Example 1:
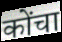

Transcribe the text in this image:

कोंचा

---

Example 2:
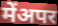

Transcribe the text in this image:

मेंअपर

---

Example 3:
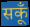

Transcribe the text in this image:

सकूँ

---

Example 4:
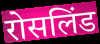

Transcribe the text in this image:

रोसलिंड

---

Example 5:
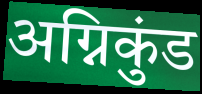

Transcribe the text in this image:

अग्निकुंड